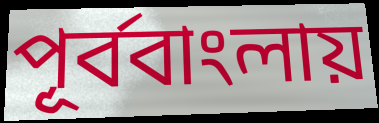
পূর্ববাংলায়